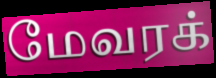
மேவரக்